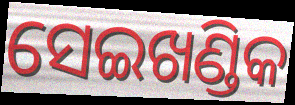
ସେଇଖଣ୍ଡିକ